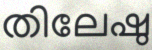
തിലേഷു